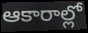
ఆకారాల్లో